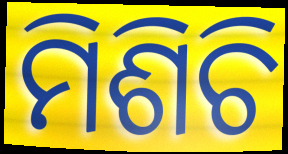
ମିଶିଚି